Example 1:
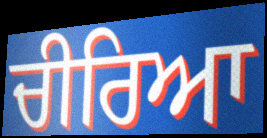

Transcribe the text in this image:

ਚੀਰਿਆ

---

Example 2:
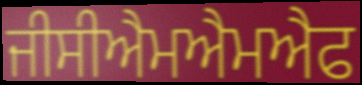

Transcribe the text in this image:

ਜੀਸੀਐਮਐਮਐਫ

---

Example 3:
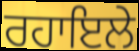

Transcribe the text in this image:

ਰਹਾਇਲੇ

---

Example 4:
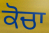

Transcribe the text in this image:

ਕੋਚਾ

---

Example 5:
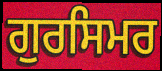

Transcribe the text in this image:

ਗੁਰਸਿਮਰ